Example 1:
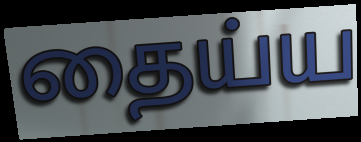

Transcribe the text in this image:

தைய்ய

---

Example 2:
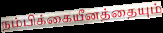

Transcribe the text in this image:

நம்பிக்கையீனத்தையும்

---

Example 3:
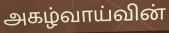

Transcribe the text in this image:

அகழ்வாய்வின்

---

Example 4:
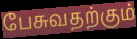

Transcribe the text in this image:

பேசுவதற்கும்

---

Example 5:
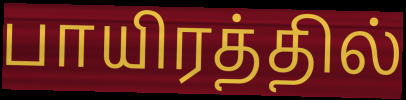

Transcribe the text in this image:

பாயிரத்தில்